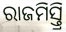
ରାଜମିସ୍ତ୍ରି